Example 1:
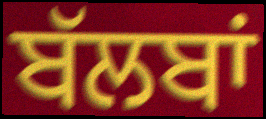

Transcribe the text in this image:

ਬੱਲਬਾਂ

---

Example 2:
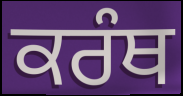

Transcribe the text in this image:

ਕਰੰਥ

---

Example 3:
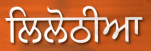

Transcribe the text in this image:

ਲਿਲੋਠੀਆ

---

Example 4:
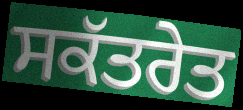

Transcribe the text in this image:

ਸਕੱਤਰੇਤ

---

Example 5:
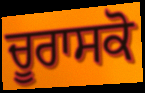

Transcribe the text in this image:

ਚੂਰਾਸਕੋ